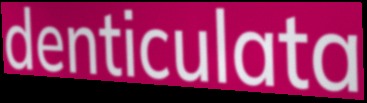
denticulata